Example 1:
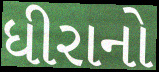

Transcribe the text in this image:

ધીરાનો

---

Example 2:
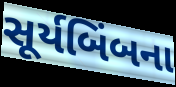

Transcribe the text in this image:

સૂર્યબિંબના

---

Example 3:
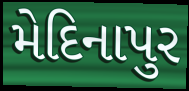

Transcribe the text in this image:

મેદિનાપુર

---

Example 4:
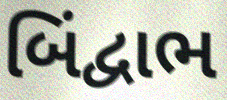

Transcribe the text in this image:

બિંદ્વાભ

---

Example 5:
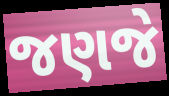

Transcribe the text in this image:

જણજે